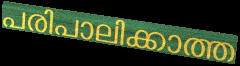
പരിപാലിക്കാത്ത